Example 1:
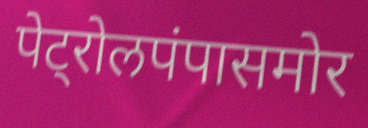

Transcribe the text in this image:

पेट्रोलपंपासमोर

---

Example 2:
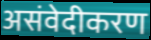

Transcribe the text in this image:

असंवेदीकरण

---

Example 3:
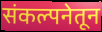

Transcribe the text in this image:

संकल्पनेतून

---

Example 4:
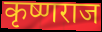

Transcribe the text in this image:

कृष्णराज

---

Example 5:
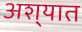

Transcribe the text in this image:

अश्यात